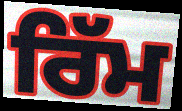
ਰਿੱਮ